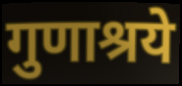
गुणाश्रये